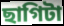
ছাগিটা